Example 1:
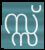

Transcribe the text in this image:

സ്സ്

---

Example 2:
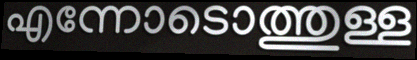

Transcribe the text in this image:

എന്നോടൊത്തുള്ള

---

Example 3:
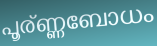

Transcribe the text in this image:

പൂര്ണ്ണബോധം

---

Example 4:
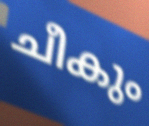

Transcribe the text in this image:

ചീകും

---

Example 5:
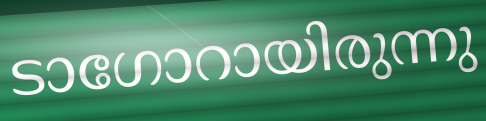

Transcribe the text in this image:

ടാഗോറായിരുന്നു